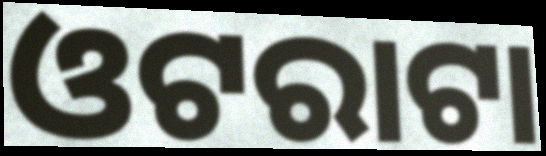
ଓଟରାଟା